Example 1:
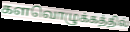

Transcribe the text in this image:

களவொழுக்கத்தில்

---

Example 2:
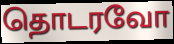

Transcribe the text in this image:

தொடரவோ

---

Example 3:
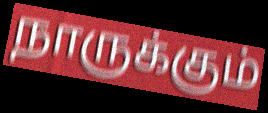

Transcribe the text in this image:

நாருக்கும்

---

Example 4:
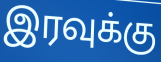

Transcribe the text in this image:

இரவுக்கு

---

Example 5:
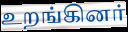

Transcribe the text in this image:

உறங்கினர்